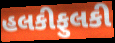
હલકીફુલકી